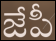
జేపీ